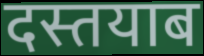
दस्तयाब